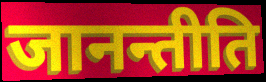
जानन्तीति